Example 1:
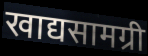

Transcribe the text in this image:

खाद्यसामग्री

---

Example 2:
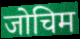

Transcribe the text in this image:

जोचिम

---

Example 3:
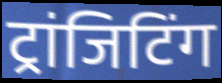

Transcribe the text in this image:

ट्रांजिटिंग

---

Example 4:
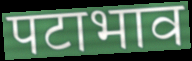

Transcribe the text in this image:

पटाभाव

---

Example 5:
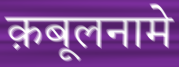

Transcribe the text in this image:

क़बूलनामे